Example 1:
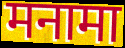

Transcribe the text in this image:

मनामा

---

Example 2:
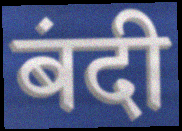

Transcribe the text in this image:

बंदी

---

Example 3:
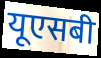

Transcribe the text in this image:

यूएसबी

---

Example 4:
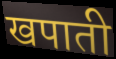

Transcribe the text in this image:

खपाती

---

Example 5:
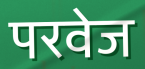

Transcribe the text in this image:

परवेज